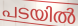
പടയിൽ